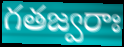
గతజ్వరాః